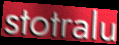
stotralu